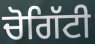
ਚੋਗਿੱਟੀ